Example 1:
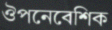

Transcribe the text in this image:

ঔপনেবেশিক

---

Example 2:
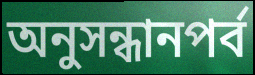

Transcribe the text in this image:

অনুসন্ধানপর্ব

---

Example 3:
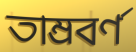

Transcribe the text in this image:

তাম্রবর্ণ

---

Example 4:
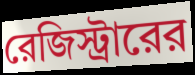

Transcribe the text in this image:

রেজিস্ট্রারের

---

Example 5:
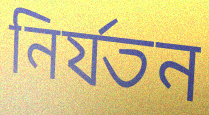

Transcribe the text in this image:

নির্যতন